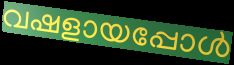
വഷളായപ്പോൾ